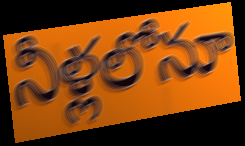
నీళ్లలోనూ